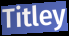
Titley